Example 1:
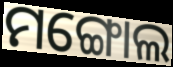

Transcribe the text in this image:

ମଙ୍ଗୋଲ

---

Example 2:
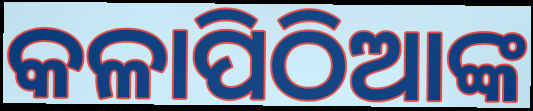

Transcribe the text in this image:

କଳାପିଠିଆଙ୍କ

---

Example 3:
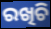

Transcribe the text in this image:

ରଖିଚି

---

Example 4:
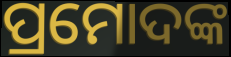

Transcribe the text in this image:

ପ୍ରମୋଦଙ୍କ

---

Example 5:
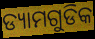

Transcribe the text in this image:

ଡ୍ୟାମଗୁଡିକ